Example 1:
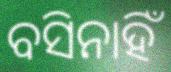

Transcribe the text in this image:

ବସିନାହିଁ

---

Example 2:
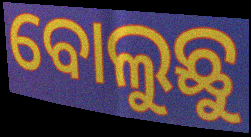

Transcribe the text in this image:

ବୋଲୁଛୁ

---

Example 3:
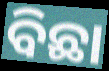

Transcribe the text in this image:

ବିଛା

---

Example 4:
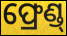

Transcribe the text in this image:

ଫ୍ରେଣ୍ଡ୍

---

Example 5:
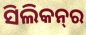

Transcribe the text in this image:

ସିଲିକନ୍‌ର